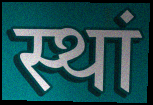
स्थां